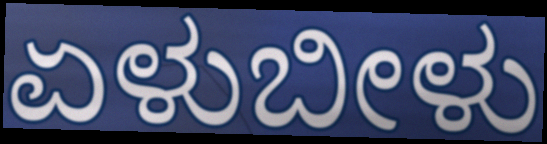
ಏಳುಬೀಳು